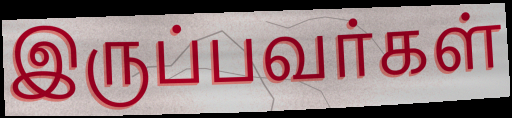
இருப்பவர்கள்